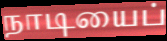
நாடியைப்